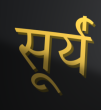
सूर्य॑